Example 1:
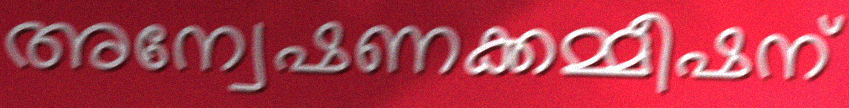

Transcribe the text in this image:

അന്വേഷണക്കമ്മീഷന്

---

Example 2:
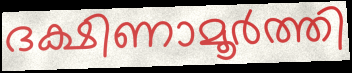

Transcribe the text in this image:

ദക്ഷിണാമൂർത്തി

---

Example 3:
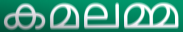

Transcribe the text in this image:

കമലമ്മ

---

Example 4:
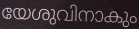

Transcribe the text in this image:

യേശുവിനാകും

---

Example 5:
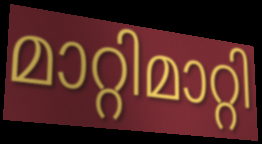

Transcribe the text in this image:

മാറ്റിമാറ്റി